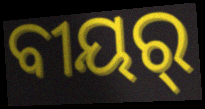
ବୀୟର୍